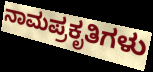
ನಾಮಪ್ರಕೃತಿಗಳು